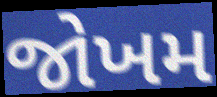
જોખમ